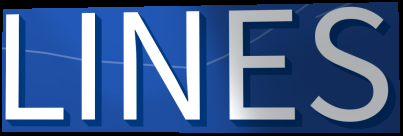
LINES